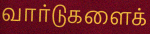
வார்டுகளைக்